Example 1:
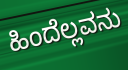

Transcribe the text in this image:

ಹಿಂದೆಲ್ಲವನು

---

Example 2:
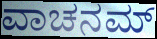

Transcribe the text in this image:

ವಾಚನಮ್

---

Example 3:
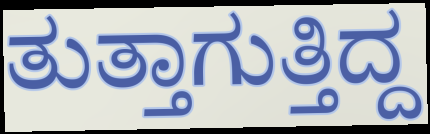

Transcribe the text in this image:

ತುತ್ತಾಗುತ್ತಿದ್ದ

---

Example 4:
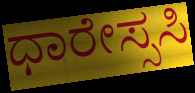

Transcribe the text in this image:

ಧಾರೇಸ್ಸಸಿ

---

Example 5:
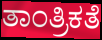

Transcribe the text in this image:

ತಾಂತ್ರಿಕತೆ